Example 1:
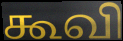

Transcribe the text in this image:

கூவி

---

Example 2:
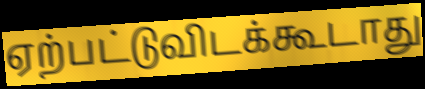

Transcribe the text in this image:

ஏற்பட்டுவிடக்கூடாது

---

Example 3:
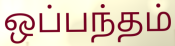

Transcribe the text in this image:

ஒப்பந்தம்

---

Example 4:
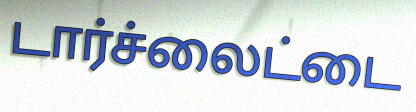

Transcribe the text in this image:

டார்ச்லைட்டை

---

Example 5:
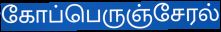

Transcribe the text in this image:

கோப்பெருஞ்சேரல்